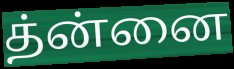
த்ன்னை